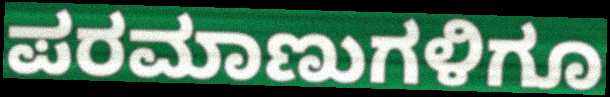
ಪರಮಾಣುಗಳಿಗೂ